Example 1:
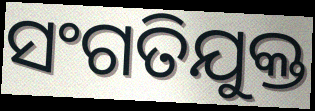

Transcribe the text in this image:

ସଂଗତିଯୁକ୍ତ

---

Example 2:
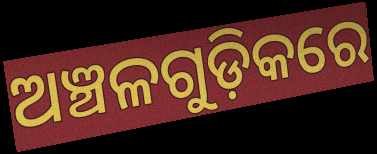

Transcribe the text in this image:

ଅଞ୍ଚଳଗୁଡ଼ିକରେ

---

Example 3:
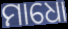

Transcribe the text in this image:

ମାଧୋ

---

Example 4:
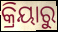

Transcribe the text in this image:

କ୍ରିୟାରୁ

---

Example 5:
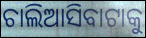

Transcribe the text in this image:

ଚାଲିଆସିବାଟାକୁ